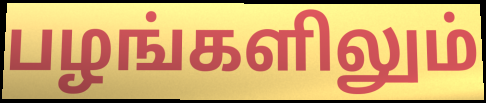
பழங்களிலும்